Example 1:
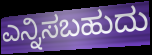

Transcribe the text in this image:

ಎನ್ನಿಸಬಹುದು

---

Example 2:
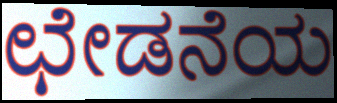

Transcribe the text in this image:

ಛೇಡನೆಯ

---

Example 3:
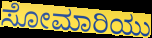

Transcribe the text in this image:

ಸೋಮಾರಿಯು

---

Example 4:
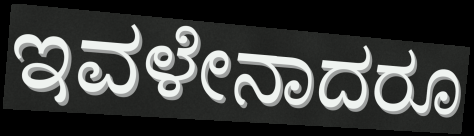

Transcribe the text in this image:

ಇವಳೇನಾದರೂ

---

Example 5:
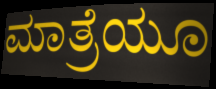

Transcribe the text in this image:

ಮಾತ್ರೆಯೂ